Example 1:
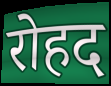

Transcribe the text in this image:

रोहद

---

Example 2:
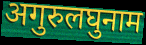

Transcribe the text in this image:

अगुरुलघुनाम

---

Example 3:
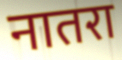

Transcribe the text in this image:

नातरा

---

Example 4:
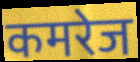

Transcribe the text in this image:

कमरेज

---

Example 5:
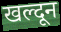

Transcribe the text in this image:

खल्दून